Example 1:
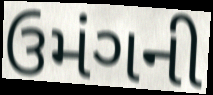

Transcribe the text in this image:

ઉમંગની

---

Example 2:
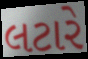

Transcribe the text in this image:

લટારે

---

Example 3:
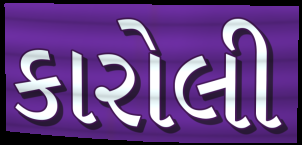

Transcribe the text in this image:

કારોલી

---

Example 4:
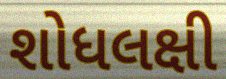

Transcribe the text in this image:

શોધલક્ષી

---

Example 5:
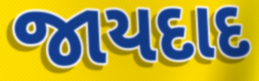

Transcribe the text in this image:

જાયદાદ